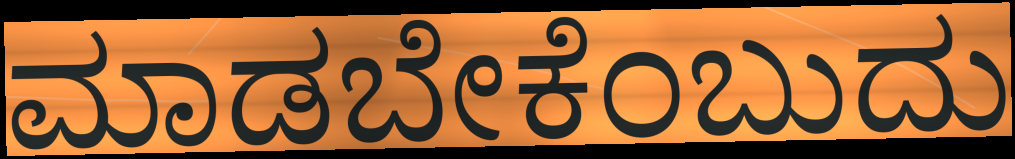
ಮಾಡಬೇಕೆಂಬುದು